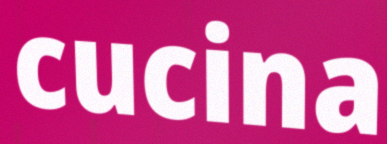
cucina